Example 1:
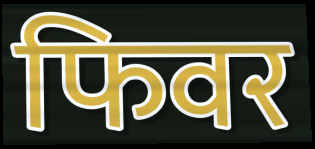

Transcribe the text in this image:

फिवर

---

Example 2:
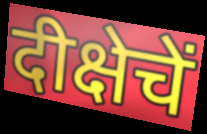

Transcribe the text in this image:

दीक्षेचें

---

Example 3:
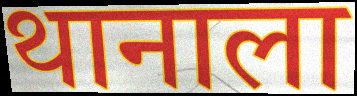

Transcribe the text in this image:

थानाला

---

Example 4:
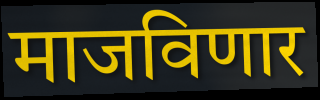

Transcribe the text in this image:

माजविणार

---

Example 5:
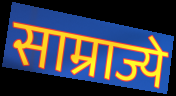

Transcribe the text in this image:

साम्राज्ये